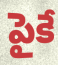
పైకే